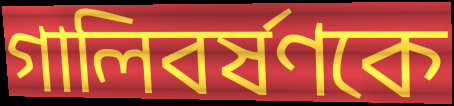
গালিবর্ষণকে